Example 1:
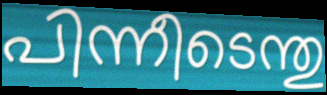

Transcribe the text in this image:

പിന്നീടെന്തു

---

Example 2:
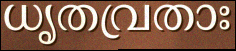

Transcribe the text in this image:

ധൃതവ്രതാഃ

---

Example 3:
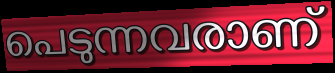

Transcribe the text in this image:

പെടുന്നവരാണ്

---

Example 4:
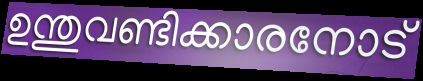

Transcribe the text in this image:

ഉന്തുവണ്ടിക്കാരനോട്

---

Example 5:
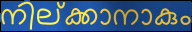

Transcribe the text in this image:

നില്ക്കാനാകും